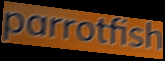
parrotfish